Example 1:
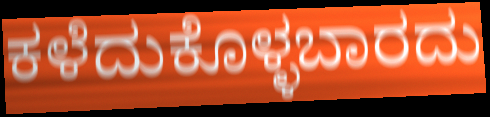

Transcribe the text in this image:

ಕಳೆದುಕೊಳ್ಳಬಾರದು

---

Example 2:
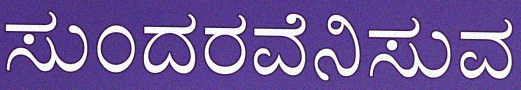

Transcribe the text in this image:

ಸುಂದರವೆನಿಸುವ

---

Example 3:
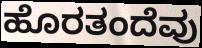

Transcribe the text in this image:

ಹೊರತಂದೆವು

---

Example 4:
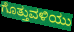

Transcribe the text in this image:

ಗೊತ್ತುವಳಿಯು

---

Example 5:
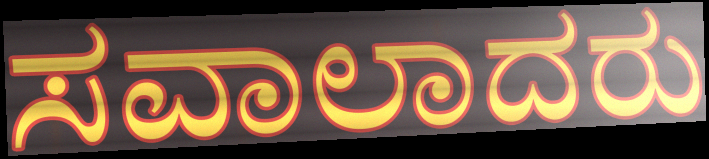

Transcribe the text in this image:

ಸವಾಲಾದರು